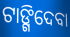
ଟାଙ୍ଗିଦେବା